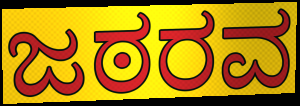
ಜಠರವ